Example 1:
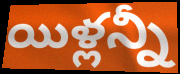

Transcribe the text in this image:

యిళ్లన్నీ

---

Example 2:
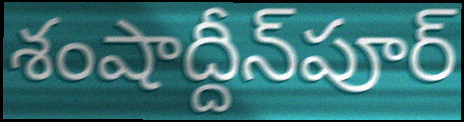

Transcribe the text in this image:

శంషాద్దీన్‌పూర్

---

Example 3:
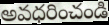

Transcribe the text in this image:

అవధరించండి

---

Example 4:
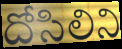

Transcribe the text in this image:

దోసిలిని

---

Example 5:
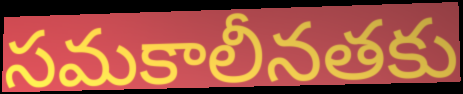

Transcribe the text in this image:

సమకాలీనతకు